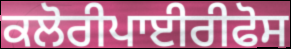
ਕਲੋਰੀਪਾਈਰੀਫੋਸ